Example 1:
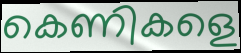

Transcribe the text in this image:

കെണികളെ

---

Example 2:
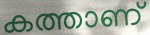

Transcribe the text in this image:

കത്താണ്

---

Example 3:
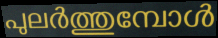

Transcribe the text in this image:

പുലർത്തുമ്പോൾ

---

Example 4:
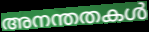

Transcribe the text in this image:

അനന്തതകൾ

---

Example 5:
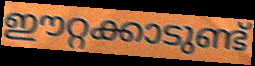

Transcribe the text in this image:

ഈറ്റക്കാടുണ്ട്